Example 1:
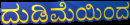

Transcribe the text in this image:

ದುಡಿಮೆಯಿಂದ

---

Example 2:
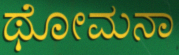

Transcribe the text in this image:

ಥೋಮನಾ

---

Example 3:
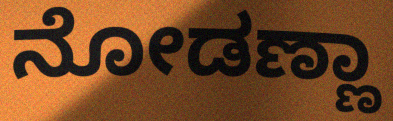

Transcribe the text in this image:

ನೋಡಣ್ಣಾ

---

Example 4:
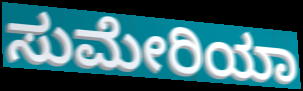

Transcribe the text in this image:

ಸುಮೇರಿಯಾ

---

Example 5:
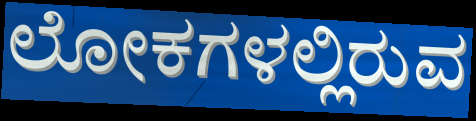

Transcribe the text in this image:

ಲೋಕಗಳಲ್ಲಿರುವ